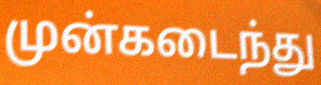
முன்கடைந்து